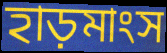
হাড়মাংস